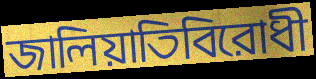
জালিয়াতিবিরোধী